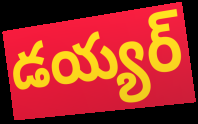
డయ్యర్